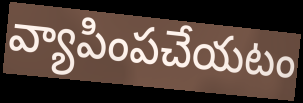
వ్యాపింపచేయటం